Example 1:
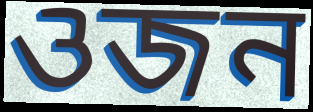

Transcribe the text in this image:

ওজন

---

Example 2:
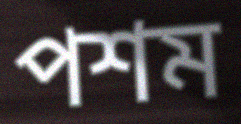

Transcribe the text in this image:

পশম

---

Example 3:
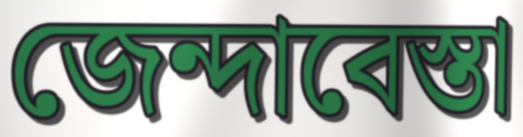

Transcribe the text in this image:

জেন্দাবেস্তা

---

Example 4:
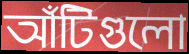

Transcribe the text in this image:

আঁটিগুলো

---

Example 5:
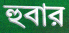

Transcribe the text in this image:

হুবার